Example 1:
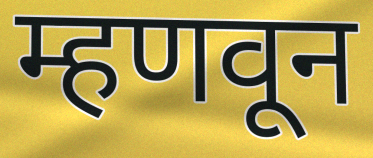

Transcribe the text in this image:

म्हणवून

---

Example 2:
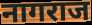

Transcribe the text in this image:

नागराज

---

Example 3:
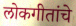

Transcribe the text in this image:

लोकगीतांचे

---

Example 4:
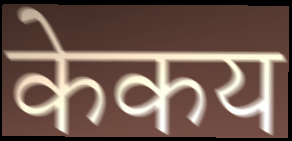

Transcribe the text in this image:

केकय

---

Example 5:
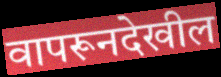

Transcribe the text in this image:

वापरूनदेखील